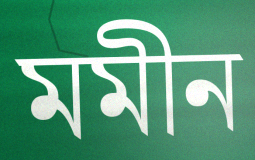
মমীন